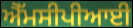
ਐੱਮਸੀਪੀਆਈ